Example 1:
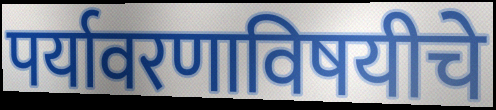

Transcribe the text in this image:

पर्यावरणाविषयीचे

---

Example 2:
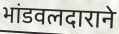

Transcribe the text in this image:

भांडवलदाराने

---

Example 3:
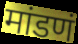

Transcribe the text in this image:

मांडणं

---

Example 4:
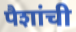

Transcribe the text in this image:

पैशांची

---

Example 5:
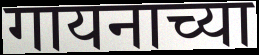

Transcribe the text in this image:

गायनाच्या